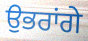
ਉਭਰਾਂਗੇ